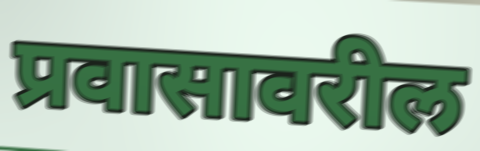
प्रवासावरील